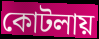
কোটলায়